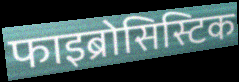
फाइब्रोसिस्टिक